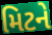
મિટને